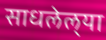
साधलेल्या